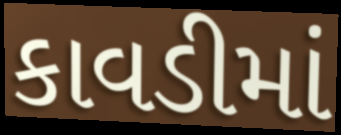
કાવડીમાં